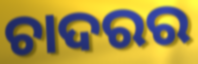
ଚାଦରର